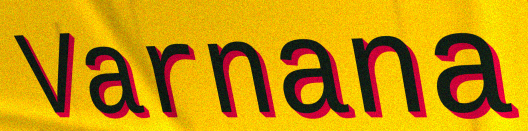
Varnana